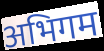
अभिगम